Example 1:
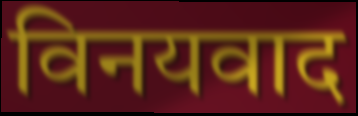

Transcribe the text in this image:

विनयवाद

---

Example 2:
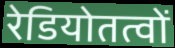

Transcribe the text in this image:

रेडियोतत्वों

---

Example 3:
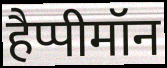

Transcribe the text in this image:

हैप्पीमॉन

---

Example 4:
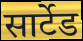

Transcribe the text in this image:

सार्टेड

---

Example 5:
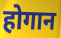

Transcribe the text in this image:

होगान